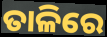
ତାଳିରେ